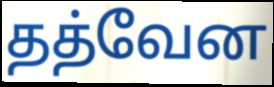
தத்வேன